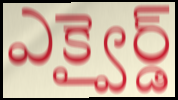
ఎక్వైర్డ్